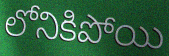
లోనికిపోయి